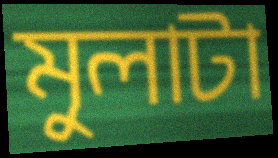
মুলাটা